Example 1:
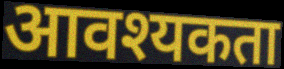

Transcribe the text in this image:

आवश्यकता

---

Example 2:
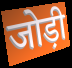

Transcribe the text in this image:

जोड़ी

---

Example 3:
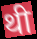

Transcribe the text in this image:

थी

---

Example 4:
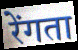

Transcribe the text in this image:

रेंगता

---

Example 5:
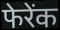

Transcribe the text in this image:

फेरेंक